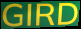
GIRD